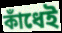
কাঁধেই